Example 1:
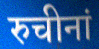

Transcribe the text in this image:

रुचीनां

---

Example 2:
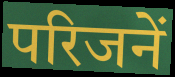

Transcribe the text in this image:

परिजनें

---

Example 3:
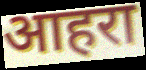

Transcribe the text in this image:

आहरा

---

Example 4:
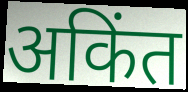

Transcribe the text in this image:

अकिंत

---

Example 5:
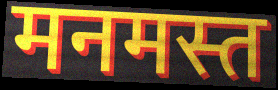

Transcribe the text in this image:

मनमस्त